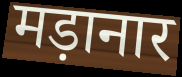
मड़ानार